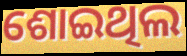
ଶୋଇଥିଲ